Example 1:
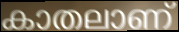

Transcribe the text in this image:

കാതലാണ്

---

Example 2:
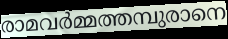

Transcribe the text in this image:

രാമവർമ്മത്തമ്പുരാനെ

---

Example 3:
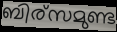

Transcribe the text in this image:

ബിര്സമുണ്ട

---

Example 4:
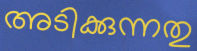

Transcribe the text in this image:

അടിക്കുന്നതു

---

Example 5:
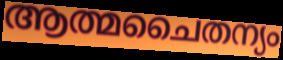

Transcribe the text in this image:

ആത്മചൈതന്യം